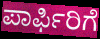
ಪಾರ್ಫಿರಿಗೆ